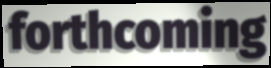
forthcoming